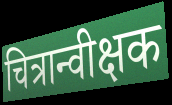
चित्रान्वीक्षक